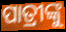
ପାତ୍ରୀଙ୍କୁ